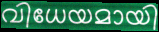
വിധേയമായി